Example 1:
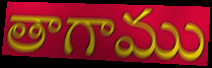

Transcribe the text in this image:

తాగాము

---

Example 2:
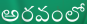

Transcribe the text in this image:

అరవంలో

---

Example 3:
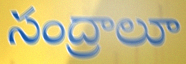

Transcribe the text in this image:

సంద్రాలూ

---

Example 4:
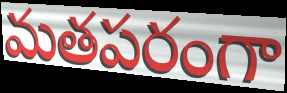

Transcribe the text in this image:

మతపరంగా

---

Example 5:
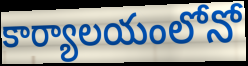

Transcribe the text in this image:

కార్యాలయంలోనో